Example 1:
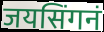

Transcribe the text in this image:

जयसिंगनं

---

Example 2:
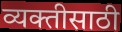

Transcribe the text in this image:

व्यक्तीसाठी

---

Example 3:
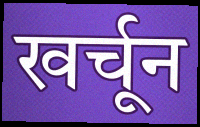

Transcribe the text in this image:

खर्चून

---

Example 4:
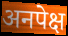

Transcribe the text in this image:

अनपेक्ष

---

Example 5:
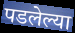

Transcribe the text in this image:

पडलेल्या